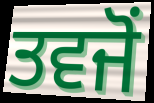
ਤਵਜੋਂ